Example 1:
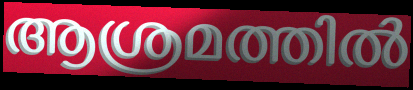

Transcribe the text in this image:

ആശ്രമത്തിൽ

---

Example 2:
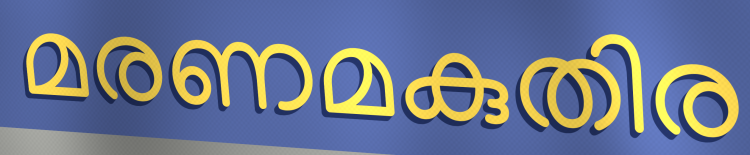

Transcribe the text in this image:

മരണമകുതിര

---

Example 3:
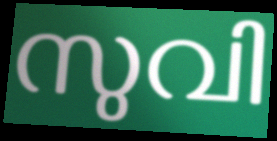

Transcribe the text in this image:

സുവി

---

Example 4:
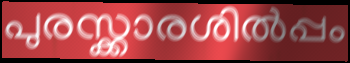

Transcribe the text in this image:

പുരസ്ക്കാരശിൽപ്പം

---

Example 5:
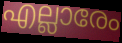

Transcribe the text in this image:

എല്ലാരേം